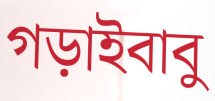
গড়াইবাবু